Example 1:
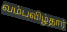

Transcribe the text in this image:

வம்பவிழ்தார்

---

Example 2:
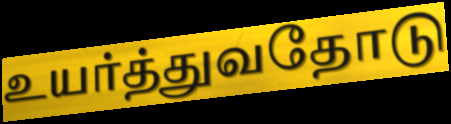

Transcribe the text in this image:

உயர்த்துவதோடு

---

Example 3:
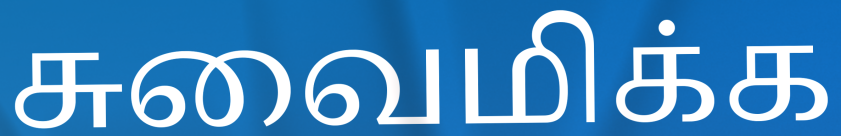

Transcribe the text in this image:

சுவைமிக்க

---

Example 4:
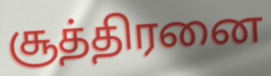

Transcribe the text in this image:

சூத்திரனை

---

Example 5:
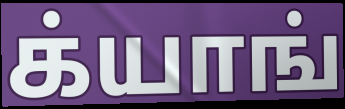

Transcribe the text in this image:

க்யாங்